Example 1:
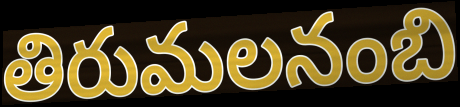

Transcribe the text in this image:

తిరుమలనంబి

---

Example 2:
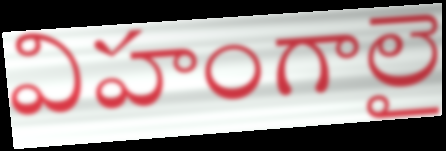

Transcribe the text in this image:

విహంగాలై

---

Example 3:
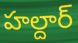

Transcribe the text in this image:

హల్దార్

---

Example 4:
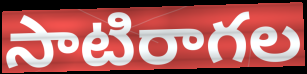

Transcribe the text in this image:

సాటిరాగల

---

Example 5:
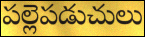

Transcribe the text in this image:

పల్లెపడుచులు